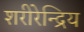
शरीरेन्द्रिय